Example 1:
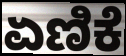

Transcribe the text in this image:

ಏಣಿಕೆ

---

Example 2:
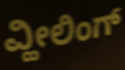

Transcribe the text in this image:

ವ್ಹೀಲಿಂಗ್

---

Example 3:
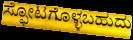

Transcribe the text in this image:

ಸ್ಫೋಟಗೊಳ್ಳಬಹುದು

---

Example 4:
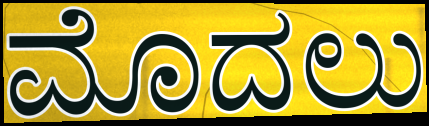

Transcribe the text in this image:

ಮೊದಲು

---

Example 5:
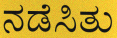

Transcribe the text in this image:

ನಡೆಸಿತು